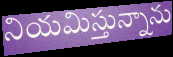
నియమిస్తున్నాను